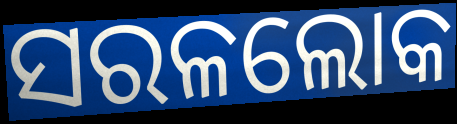
ସରଳଲୋକ